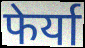
फेर्या